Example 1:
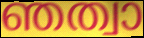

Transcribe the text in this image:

ഞത്വാ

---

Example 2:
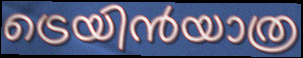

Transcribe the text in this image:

ട്രെയിൻയാത്ര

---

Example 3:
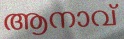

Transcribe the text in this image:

ആനാവ്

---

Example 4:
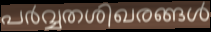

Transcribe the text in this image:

പർവ്വതശിഖരങ്ങൾ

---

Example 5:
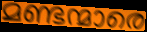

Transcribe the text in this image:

മണ്ടന്മാരെ